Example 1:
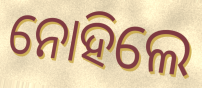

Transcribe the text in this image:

ନୋହିଲେ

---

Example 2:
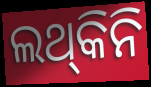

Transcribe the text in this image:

ଲଥ୍‌କିନି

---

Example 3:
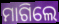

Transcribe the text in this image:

ମାଗିଲେ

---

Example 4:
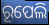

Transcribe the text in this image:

ରୂପେଲି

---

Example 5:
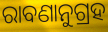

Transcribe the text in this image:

ରାବଣାନୁଗ୍ରହ